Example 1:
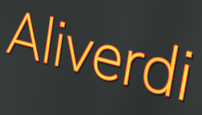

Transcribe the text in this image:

Aliverdi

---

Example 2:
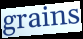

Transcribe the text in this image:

grains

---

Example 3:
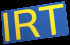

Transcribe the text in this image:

IRT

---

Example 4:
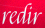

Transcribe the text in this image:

redir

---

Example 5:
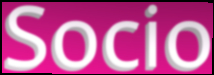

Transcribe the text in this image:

Socio